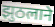
झुठलाने